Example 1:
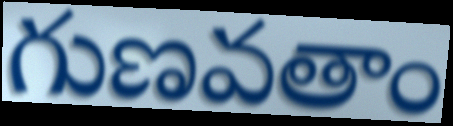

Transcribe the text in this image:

గుణవతాం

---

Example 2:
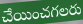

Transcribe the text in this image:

చేయించగలరు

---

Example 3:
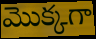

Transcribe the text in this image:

మొక్కగా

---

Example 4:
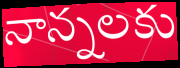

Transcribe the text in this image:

నాన్నలకు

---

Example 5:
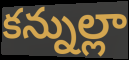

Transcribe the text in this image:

కన్నుల్లా